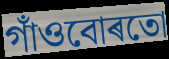
গাঁওবোৰতো